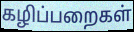
கழிப்பறைகள்